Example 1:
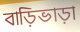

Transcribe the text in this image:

বাড়িভাড়া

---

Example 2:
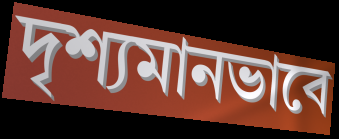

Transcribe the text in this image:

দৃশ্যমানভাবে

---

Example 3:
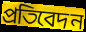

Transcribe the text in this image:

প্রতিবেদন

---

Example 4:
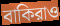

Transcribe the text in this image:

বাকিরাও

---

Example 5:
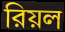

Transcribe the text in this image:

রিয়ল